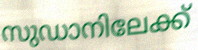
സുഡാനിലേക്ക്